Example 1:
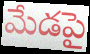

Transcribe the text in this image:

మేడపై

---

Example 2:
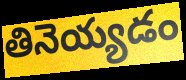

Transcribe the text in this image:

తినెయ్యడం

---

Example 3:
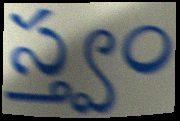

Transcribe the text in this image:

స్త్వం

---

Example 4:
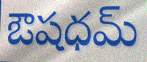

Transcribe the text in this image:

ఔషధమ్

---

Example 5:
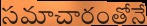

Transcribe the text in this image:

సమాచారంతోనే